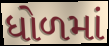
ધોળમાં